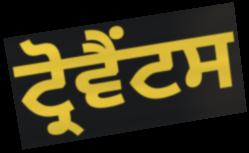
ਟ੍ਰੋਵੈਂਟਸ